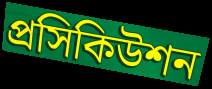
প্রসিকিউশন